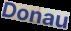
Donau